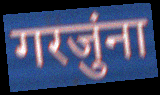
गरजुंना